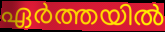
ഏർത്തയിൽ